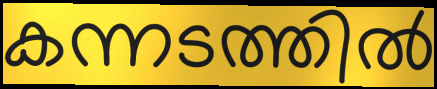
കന്നടത്തിൽ